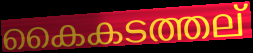
കൈകടത്തല്